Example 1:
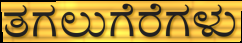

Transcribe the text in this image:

ತಗಲುಗೆರೆಗಳು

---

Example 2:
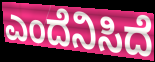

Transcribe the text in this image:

ಎಂದೆನಿಸಿದೆ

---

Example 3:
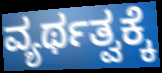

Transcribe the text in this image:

ವ್ಯರ್ಥತ್ವಕ್ಕೆ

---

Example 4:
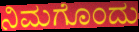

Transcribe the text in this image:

ನಿಮಗೊಂದು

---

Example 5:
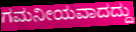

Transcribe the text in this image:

ಗಮನೀಯವಾದದ್ದು